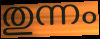
തുന്നം